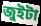
জুইটা